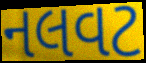
નલવટ